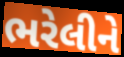
ભરેલીને